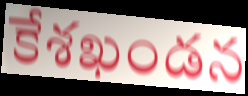
కేశఖండన